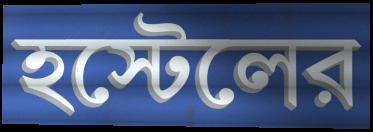
হস্টেলের